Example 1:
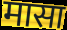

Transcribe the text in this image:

मासा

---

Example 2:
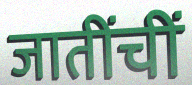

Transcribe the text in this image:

जातींचीं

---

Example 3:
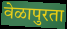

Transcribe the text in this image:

वेळापुरता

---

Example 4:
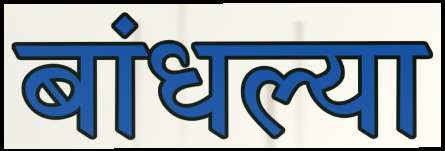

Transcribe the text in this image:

बांधल्या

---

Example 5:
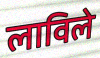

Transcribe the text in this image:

लाविले